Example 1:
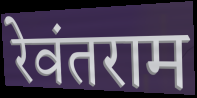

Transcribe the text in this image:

रेवंतराम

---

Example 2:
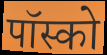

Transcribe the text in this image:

पॉस्को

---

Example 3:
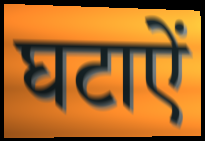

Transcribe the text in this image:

घटाऐं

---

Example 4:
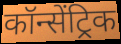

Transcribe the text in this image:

कॉन्सेंट्रिक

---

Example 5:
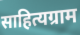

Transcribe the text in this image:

साहित्यग्राम